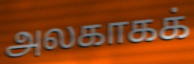
அலகாகக்